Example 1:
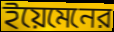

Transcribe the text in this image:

ইয়েমেনের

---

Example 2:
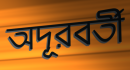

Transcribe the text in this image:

অদূরবর্তী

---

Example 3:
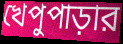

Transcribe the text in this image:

খেপুপাড়ার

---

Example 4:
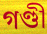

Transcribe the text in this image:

গণ্ডী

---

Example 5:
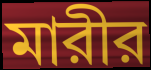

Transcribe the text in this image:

মারীর